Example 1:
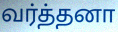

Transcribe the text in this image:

வர்த்தனா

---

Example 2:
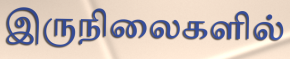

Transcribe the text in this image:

இருநிலைகளில்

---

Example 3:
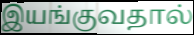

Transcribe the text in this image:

இயங்குவதால்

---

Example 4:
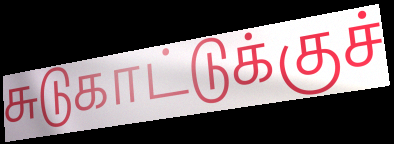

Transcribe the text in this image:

சுடுகாட்டுக்குச்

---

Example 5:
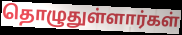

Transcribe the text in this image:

தொழுதுள்ளார்கள்